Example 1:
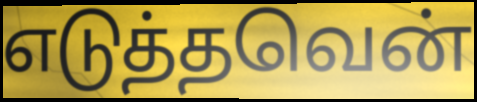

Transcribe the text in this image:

எடுத்தவென்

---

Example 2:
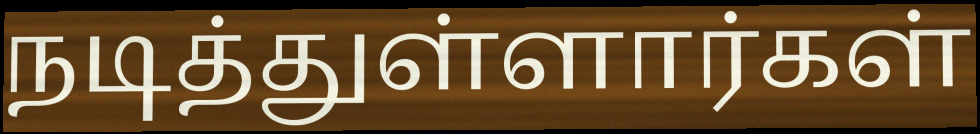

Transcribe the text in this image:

நடித்துள்ளார்கள்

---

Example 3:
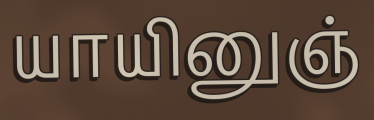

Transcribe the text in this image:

யாயினுஞ்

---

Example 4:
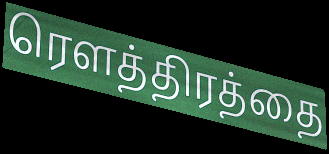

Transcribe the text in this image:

ரௌத்திரத்தை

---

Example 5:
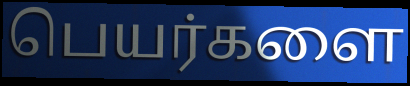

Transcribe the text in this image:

பெயர்களை